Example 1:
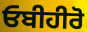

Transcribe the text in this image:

ਓਬੀਹੀਰੋ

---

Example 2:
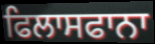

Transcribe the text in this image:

ਫਿਲਾਸਫਾਨਾ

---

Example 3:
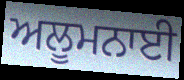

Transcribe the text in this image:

ਅਲੂਮਨਾਈ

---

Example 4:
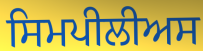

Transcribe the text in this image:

ਸਿਮਪੀਲੀਅਸ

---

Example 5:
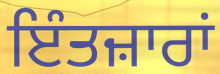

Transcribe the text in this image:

ਇੰਤਜ਼ਾਰਾਂ